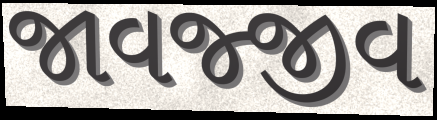
જાવજ્જીવ